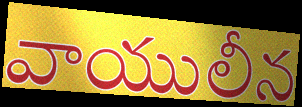
వాయులీన